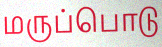
மருப்பொடு